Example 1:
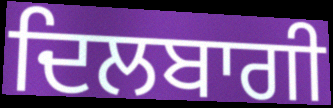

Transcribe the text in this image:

ਦਿਲਬਾਗੀ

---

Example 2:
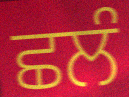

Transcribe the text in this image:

ਛਲੰ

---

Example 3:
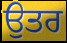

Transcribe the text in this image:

ਉਤਰ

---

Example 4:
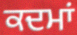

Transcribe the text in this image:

ਕਦਮਾਂ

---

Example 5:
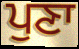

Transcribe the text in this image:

ਪੁਣਾ